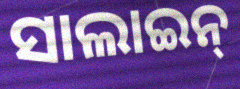
ସାଲାଇନ୍